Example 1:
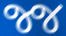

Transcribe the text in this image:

જ્જ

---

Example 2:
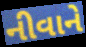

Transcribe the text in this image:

નીવાને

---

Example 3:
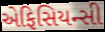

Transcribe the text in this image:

એફિસિયન્સી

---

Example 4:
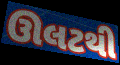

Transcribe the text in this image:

ઊલટથી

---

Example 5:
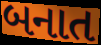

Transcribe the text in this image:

બનાત